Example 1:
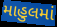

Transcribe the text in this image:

માહુલમાં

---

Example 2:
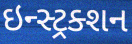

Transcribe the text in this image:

ઇન્સ્ટ્રક્શન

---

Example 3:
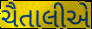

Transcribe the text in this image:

ચૈતાલીએ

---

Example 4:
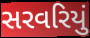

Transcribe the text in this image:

સરવરિયું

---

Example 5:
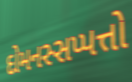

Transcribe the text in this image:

દોમનસ્સપ્પત્તો